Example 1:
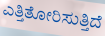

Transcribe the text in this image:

ಎತ್ತಿತೋರಿಸುತ್ತಿದೆ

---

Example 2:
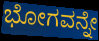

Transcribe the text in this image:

ಭೋಗವನ್ನೇ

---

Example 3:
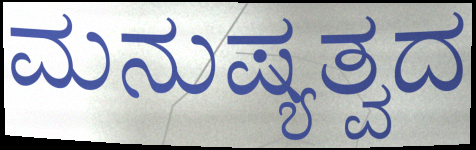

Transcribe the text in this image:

ಮನುಷ್ಯತ್ವದ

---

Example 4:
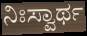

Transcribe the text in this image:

ನಿಃಸ್ವಾರ್ಥ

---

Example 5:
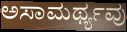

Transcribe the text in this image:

ಅಸಾಮರ್ಥ್ಯವು